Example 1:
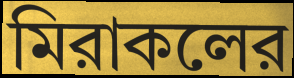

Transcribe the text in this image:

মিরাকলের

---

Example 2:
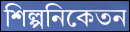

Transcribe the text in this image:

শিল্পনিকেতন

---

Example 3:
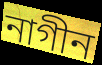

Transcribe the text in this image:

নাগীন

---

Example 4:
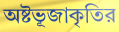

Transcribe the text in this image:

অষ্টভূজাকৃতির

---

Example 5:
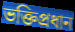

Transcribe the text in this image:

ভক্তিপ্রধান